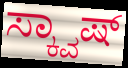
ಸ್ಕ್ವಾಷ್